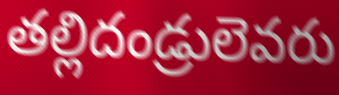
తల్లిదండ్రులెవరు